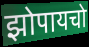
झोपायचो